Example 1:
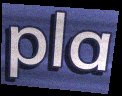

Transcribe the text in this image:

pla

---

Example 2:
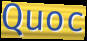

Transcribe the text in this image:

Quoc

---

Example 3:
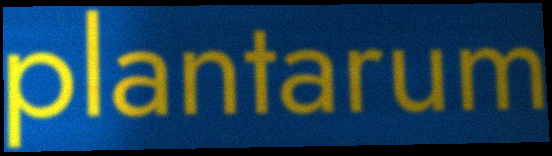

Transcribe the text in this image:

plantarum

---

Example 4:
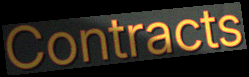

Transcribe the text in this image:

Contracts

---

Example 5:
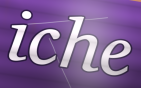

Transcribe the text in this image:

iche